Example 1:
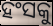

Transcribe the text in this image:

ହଂସକୁ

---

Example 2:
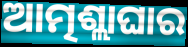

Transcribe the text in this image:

ଆତ୍ମଶ୍ଲାଘାର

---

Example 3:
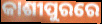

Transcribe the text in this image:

କାଶୀପୁରରେ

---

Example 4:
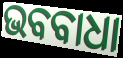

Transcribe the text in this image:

ଭବବାଧା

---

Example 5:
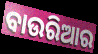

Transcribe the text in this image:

ବାଉରିଆର